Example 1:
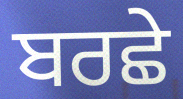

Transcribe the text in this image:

ਬਰਛੇ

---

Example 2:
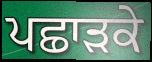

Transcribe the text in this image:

ਪਛਾੜਕੇ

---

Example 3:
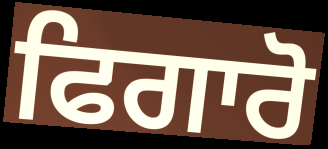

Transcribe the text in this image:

ਫਿਗਾਰੋ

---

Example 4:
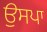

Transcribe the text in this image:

ਉਸਪਾ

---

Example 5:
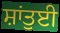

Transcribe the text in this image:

ਸ਼ਾਂਤੁਈ